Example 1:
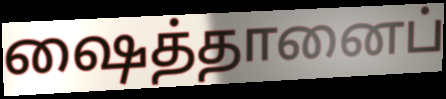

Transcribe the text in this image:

ஷைத்தானைப்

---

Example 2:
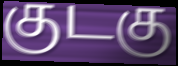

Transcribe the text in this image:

குடகு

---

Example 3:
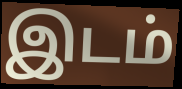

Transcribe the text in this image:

இடம்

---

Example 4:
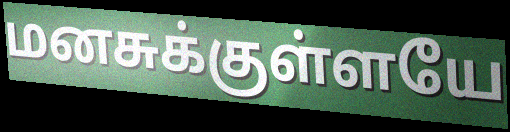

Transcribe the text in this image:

மனசுக்குள்ளயே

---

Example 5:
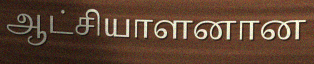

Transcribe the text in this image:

ஆட்சியாளனான